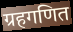
ग्रहगणित